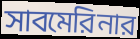
সাবমেরিনার